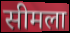
सीमला